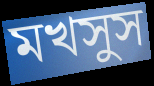
মখসুস